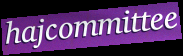
hajcommittee